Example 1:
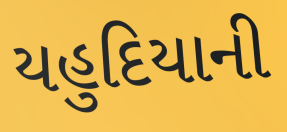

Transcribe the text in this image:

યહુદિયાની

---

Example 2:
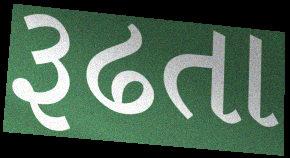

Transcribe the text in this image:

રૂઢતા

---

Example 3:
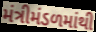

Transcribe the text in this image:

મંત્રીમંડળમાંથી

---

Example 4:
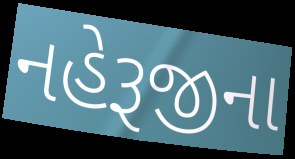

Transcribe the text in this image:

નહેરૂજીના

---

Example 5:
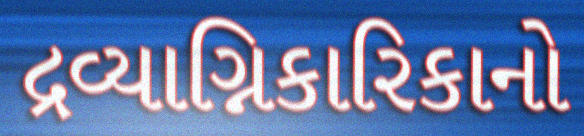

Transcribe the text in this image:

દ્રવ્યાગ્નિકારિકાનો